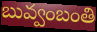
బువ్వంబంతి